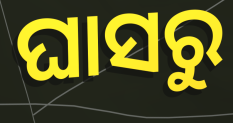
ଘାସରୁ